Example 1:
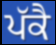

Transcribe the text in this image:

ਪੱਕੈ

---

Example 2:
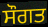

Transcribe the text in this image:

ਸੌਗਤ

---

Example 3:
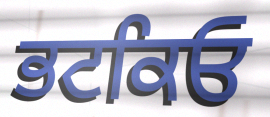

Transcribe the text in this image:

ਭਟਕਿਓ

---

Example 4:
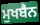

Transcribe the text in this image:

ਮੁਖਬੈਨ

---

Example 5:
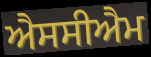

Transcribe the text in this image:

ਐਸਸੀਐਮ